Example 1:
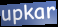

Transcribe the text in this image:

upkar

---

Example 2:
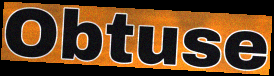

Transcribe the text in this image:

Obtuse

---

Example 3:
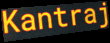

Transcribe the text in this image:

Kantraj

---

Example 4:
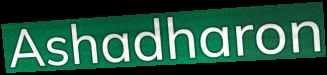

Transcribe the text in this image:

Ashadharon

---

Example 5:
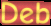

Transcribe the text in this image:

Deb